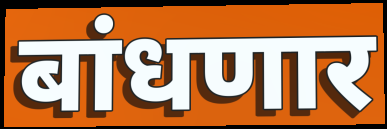
बांधणार